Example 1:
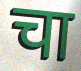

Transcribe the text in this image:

चा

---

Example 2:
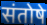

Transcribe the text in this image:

संतोषे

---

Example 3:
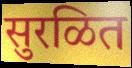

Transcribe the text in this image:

सुरळित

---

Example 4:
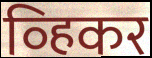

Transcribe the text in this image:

व्हिकर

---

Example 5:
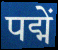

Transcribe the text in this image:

पद्में